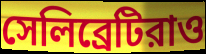
সেলিব্রেটিরাও